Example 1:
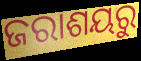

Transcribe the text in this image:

ଜରାଶୟରୁ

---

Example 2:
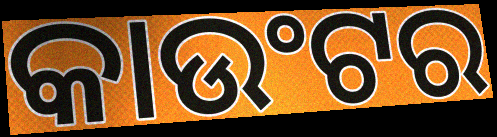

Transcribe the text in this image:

କାଉଂଟର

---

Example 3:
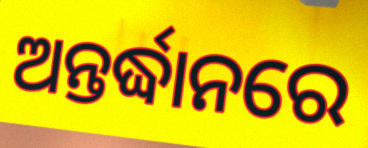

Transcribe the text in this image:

ଅନ୍ତର୍ଦ୍ଧାନରେ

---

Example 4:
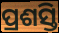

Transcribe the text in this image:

ପ୍ରଶସ୍ତି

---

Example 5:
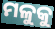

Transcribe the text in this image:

ମଳୁକୁ